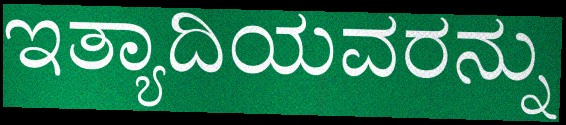
ಇತ್ಯಾದಿಯವರನ್ನು